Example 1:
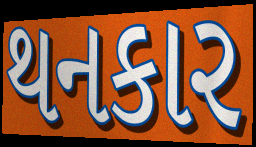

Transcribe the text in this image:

થનકાર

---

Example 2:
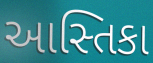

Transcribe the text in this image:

આસ્તિકા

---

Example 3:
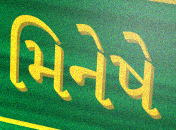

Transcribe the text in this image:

મિનેષે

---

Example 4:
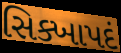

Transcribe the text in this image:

સિક્ખાપદં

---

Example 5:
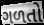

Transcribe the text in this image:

ગળતો